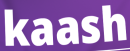
kaash